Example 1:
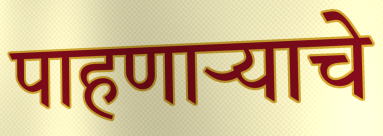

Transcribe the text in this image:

पाहणाऱ्याचे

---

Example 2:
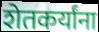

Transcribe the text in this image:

शेतकर्यांना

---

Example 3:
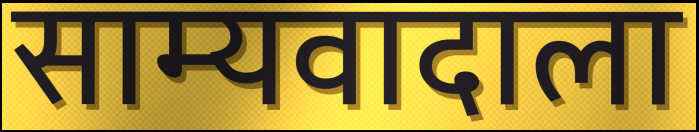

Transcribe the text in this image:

साम्यवादाला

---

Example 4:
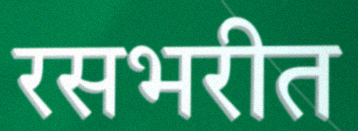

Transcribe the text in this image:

रसभरीत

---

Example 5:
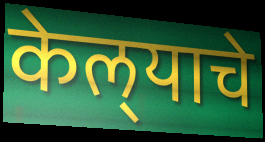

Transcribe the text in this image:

केल्याचे